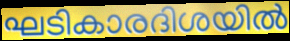
ഘടികാരദിശയിൽ